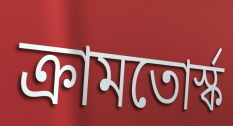
ক্রামতোর্স্ক